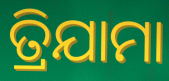
ତ୍ରିଯାମା